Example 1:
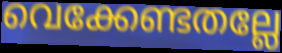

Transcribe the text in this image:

വെക്കേണ്ടതല്ലേ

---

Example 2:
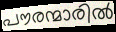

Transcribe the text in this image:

പൗരന്മാരിൽ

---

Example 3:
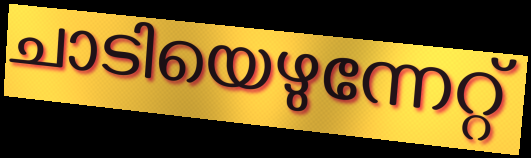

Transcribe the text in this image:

ചാടിയെഴുന്നേറ്റ്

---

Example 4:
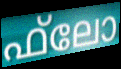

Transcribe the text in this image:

ഫ്‌ലോ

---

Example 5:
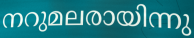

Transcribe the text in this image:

നറുമലരായിന്നു